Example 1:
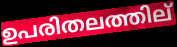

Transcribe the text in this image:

ഉപരിതലത്തില്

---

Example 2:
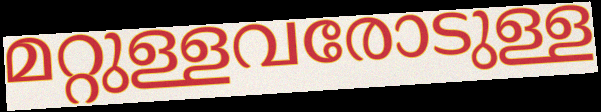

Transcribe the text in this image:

മറ്റുള്ളവരോടുള്ള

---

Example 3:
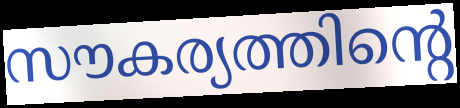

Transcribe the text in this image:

സൗകര്യത്തിന്റെ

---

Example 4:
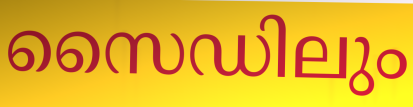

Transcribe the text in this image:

സൈഡിലും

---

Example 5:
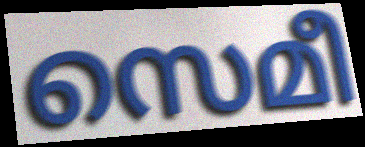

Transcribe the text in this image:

സെമീ